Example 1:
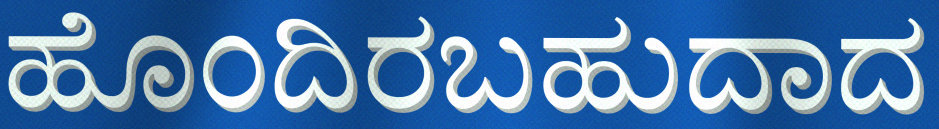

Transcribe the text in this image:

ಹೊಂದಿರಬಹುದಾದ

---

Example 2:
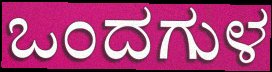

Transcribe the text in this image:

ಒಂದಗುಳ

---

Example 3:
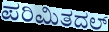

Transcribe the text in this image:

ಪರಿಮಿತದಲ್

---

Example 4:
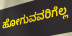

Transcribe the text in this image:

ಹೋಗುವವರಿಗೆಲ್ಲ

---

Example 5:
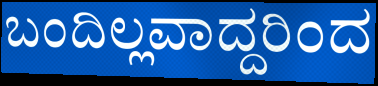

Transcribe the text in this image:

ಬಂದಿಲ್ಲವಾದ್ದರಿಂದ